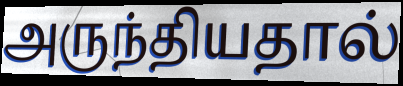
அருந்தியதால்